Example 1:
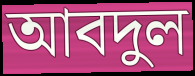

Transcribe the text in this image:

আবদুল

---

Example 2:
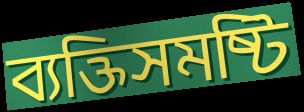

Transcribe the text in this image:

ব্যক্তিসমষ্টি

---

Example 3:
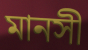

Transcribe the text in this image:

মানসী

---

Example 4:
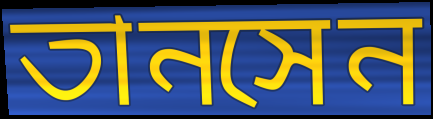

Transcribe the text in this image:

তানসেন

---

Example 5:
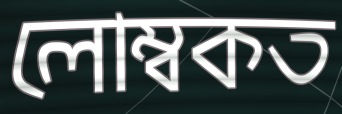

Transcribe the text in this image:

লোম্বকত